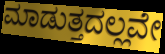
ಮಾಡುತ್ತದಲ್ಲವೇ